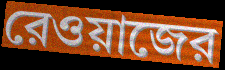
রেওয়াজের